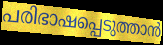
പരിഭാഷപ്പെടുത്താൻ